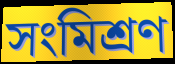
সংমিশ্রণ